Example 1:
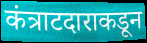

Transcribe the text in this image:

कंत्राटदाराकडून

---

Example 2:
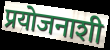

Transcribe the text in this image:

प्रयोजनाशी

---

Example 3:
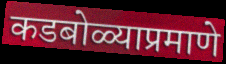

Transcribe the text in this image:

कडबोळ्याप्रमाणे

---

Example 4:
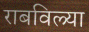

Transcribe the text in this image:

राबविल्या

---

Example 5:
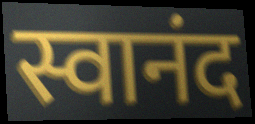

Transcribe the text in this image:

स्वानंद